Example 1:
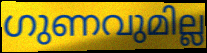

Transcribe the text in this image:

ഗുണവുമില്ല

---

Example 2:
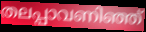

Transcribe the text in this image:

തലപ്പാവണിഞ്ഞ്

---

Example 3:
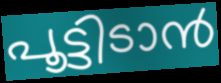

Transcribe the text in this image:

പൂട്ടിടാൻ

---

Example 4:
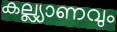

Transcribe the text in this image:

കല്ല്യാണവും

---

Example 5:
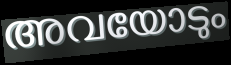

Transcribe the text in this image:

അവയോടും